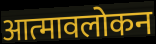
आत्‍मावलोकन